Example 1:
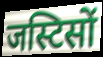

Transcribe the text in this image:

जस्टिसों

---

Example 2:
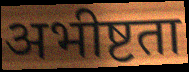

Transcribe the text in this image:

अभीष्टता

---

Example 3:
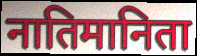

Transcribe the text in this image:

नातिमानिता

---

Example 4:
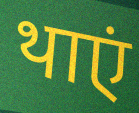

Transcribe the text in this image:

थाएं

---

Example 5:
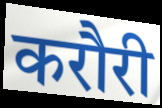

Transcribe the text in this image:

करौरी